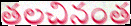
తలచినంత